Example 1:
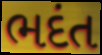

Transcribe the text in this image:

ભદંત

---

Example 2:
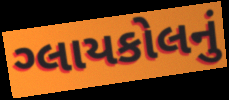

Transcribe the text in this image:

ગ્લાયકોલનું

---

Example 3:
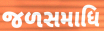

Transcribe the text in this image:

જળસમાધિ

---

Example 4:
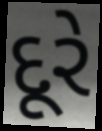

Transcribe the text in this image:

દૂરે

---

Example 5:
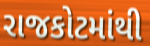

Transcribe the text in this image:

રાજકોટમાંથી